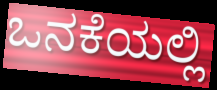
ಒನಕೆಯಲ್ಲಿ